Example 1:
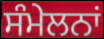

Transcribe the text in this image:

ਸੰਮੇਲਨਾਂ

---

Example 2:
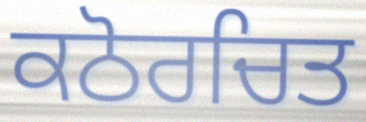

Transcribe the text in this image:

ਕਠੋਰਚਿਤ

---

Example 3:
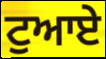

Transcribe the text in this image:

ਟੁਆਏ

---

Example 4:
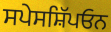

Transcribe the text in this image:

ਸਪੇਸਸ਼ਿੱਪਓਨ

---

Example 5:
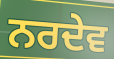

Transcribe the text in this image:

ਨਰਦੇਵ